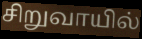
சிறுவாயில்